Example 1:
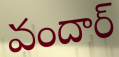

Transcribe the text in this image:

వందార్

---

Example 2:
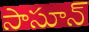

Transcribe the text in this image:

సాసూన్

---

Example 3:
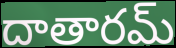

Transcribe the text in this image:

దాతారమ్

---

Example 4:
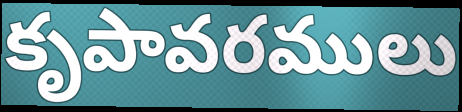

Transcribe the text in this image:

కృపావరములు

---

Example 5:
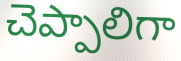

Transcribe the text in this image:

చెప్పాలిగా